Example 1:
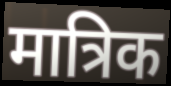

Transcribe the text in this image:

मात्रिक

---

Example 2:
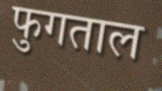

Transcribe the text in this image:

फुगताल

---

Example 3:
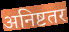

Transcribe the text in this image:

अनिष्टतर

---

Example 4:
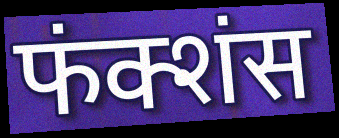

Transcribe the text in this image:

फंक्शंस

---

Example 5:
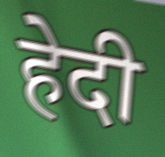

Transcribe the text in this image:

हेदी